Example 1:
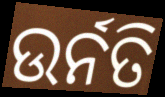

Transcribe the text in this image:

ଉର୍ନତି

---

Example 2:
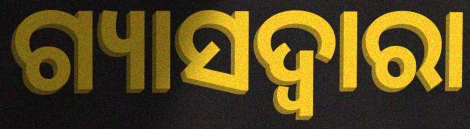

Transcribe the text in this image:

ଗ୍ୟାସଦ୍ଵାରା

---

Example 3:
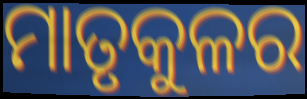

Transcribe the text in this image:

ମାତୃକୁଳର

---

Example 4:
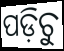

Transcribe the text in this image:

ପଡ଼ିଚୁ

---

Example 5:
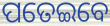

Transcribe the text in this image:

ପତେଇବେ